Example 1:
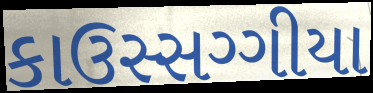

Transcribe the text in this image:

કાઉસ્સગ્ગીયા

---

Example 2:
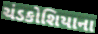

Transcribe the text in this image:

ચંડકોશિયાના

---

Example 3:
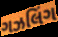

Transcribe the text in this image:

ગઝલિંગ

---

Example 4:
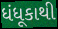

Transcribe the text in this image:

ધંધૂકાથી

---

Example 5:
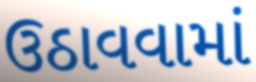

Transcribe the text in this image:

ઉઠાવવામાં